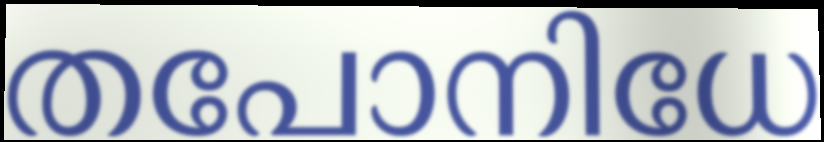
തപോനിധേ